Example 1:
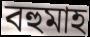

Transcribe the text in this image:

বহুমাহ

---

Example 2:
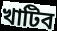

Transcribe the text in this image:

খাটিব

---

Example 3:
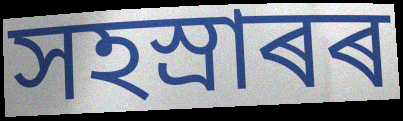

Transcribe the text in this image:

সহস্ৰাৰৰ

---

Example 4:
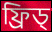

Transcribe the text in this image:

ফ্ৰিড্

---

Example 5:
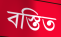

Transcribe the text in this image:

বস্তিত